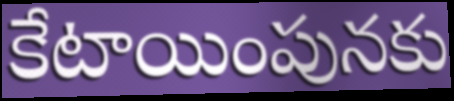
కేటాయింపునకు